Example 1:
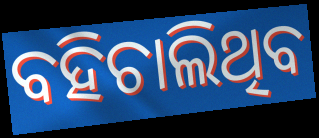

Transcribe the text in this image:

ବହିଚାଲିଥିବ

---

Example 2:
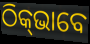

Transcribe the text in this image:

ଠିକ୍‌ଭାବେ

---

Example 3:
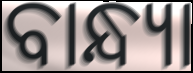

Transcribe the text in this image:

ବାନ୍ଧ୍ୟା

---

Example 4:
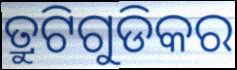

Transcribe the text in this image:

ତ୍ରୁଟିଗୁଡିକର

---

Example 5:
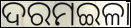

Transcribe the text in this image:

ଦରମଇଳା